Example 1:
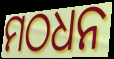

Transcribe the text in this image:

ମଠଧନ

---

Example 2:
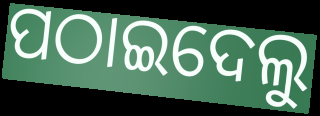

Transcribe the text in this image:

ପଠାଇଦେଲୁ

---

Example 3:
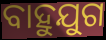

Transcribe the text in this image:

ବାହୁଯୁଗ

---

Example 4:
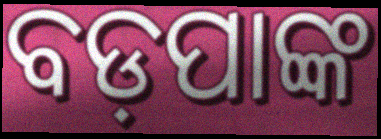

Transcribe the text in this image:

ବଡ଼ପାଙ୍କ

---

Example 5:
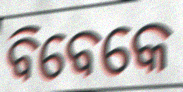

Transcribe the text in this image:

ବିବେକେ